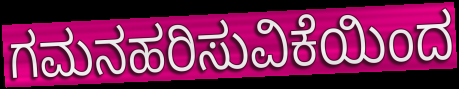
ಗಮನಹರಿಸುವಿಕೆಯಿಂದ